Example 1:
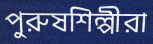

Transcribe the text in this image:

পুরুষশিল্পীরা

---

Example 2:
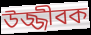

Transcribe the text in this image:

উজ্জীবক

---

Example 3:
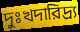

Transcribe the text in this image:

দুঃখদারিদ্র্য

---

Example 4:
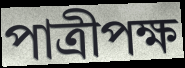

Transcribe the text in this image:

পাত্রীপক্ষ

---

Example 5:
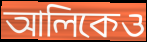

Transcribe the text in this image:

আলিকেও